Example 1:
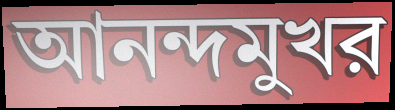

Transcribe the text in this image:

আনন্দমুখর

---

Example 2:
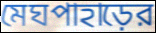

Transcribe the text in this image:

মেঘপাহাড়ের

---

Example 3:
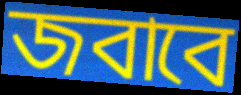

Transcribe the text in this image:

জবাবে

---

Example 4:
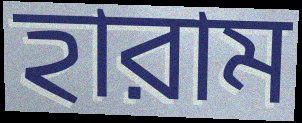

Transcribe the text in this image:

হারাম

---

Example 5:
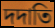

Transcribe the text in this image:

দদাতি